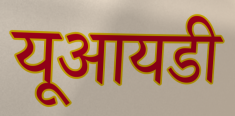
यूआयडी